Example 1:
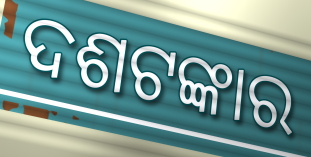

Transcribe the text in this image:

ଦଶଟଙ୍କାର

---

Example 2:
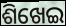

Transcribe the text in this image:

ଶିଖେଇ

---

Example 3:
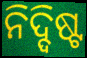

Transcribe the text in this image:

ନିଦ୍ଦିଷ୍ଟ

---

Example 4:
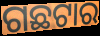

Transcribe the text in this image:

ଗଛଟାର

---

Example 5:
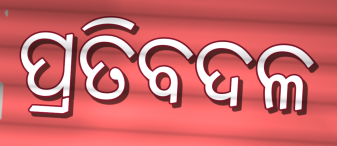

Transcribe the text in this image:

ପ୍ରତିବଦଳ